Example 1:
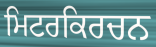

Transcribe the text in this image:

ਮਿਟਰਕਿਰਚਨ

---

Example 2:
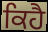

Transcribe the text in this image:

ਕਿਹੈ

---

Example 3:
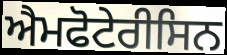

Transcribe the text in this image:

ਐਮਫੋਟੇਰੀਸਿਨ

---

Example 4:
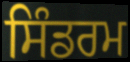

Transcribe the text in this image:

ਸਿੰਡਰਮ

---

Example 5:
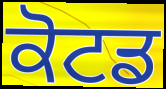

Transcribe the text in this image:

ਕੋਟਡ